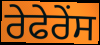
ਰੇਫੇਰੇਂਸ